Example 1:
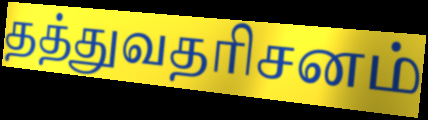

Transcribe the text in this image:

தத்துவதரிசனம்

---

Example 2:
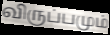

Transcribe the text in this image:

விருப்பமும்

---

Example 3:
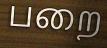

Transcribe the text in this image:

பறை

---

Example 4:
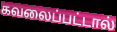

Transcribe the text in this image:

கவலைப்பட்டால்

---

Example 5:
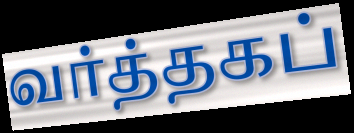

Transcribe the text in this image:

வர்த்தகப்